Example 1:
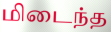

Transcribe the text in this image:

மிடைந்த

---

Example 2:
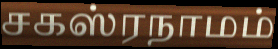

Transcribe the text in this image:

சகஸ்ரநாமம்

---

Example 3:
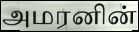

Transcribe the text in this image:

அமரனின்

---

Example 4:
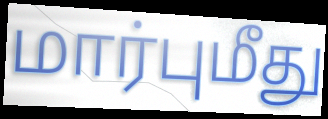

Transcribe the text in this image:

மார்புமீது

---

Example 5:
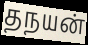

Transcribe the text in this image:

தநயன்